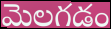
మెలగడం